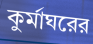
কুর্মাঘরের